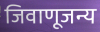
जिवाणूजन्य